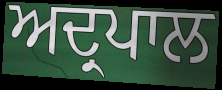
ਅਦ੍ਰਪਾਲ